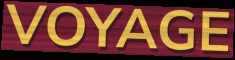
VOYAGE